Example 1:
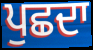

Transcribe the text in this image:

ਪੁਛਦਾ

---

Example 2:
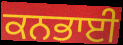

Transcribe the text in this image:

ਕਨਭਾਈ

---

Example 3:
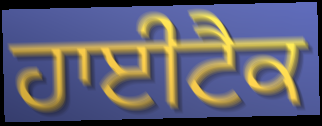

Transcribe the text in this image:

ਹਾਈਟੈਕ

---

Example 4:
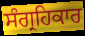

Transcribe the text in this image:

ਸੰਗ੍ਰਹਿਕਾਰ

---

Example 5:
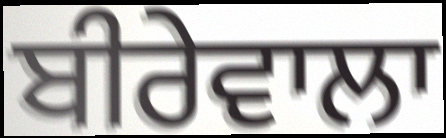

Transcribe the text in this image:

ਬੀਰੇਵਾਲਾ